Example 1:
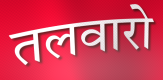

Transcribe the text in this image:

तलवारो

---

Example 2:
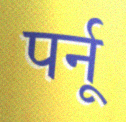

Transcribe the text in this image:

पर्नू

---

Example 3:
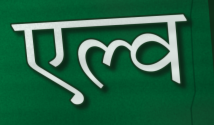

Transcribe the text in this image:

एल्व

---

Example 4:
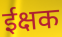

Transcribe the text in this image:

ईक्षक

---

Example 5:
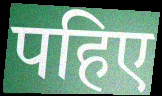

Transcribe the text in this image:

पहिए